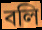
বলি